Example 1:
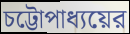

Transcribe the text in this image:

চট্টোপাধ্যয়ের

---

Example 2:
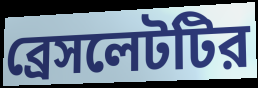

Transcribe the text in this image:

ব্রেসলেটটির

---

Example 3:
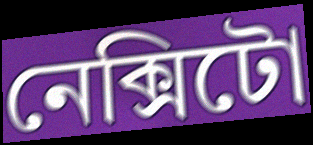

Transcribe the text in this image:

নেক্সিটো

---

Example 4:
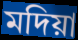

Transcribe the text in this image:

মদিয়া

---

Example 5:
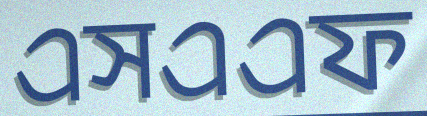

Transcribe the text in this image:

এসএএফ